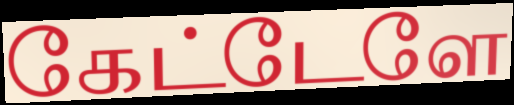
கேட்டேளே